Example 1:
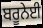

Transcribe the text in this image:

ਬਰੂਨੇਈ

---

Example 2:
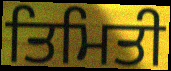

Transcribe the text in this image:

ਤਿਮਿਤੀ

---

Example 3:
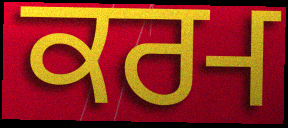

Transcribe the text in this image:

ਕਰ੍ਮ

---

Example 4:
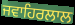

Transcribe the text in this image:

ਜਵਾਹਿਰਲਾਲ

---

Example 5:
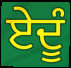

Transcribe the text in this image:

ਏਦੂੰ